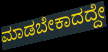
ಮಾಡಬೇಕಾದದ್ದೇ